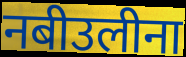
नबीउलीना